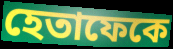
হেতাফেকে